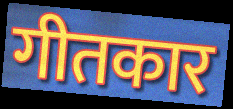
गीतकार